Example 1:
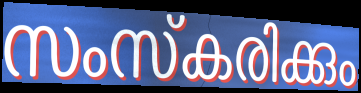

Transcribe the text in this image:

സംസ്‌കരിക്കും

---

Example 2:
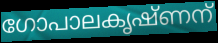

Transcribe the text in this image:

ഗോപാലകൃഷ്ണന്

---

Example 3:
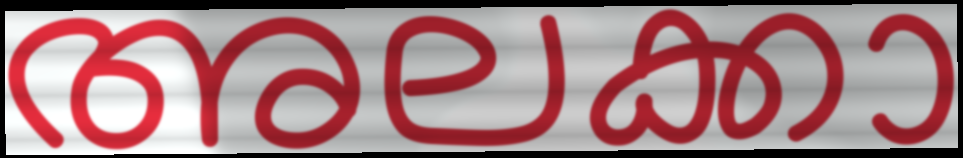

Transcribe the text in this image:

അലക്കാ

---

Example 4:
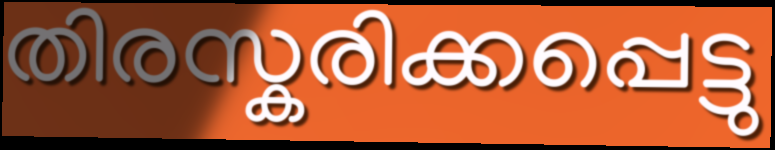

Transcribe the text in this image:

തിരസ്കരിക്കപ്പെട്ടു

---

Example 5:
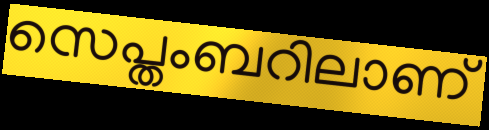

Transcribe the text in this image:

സെപ്തംബറിലാണ്